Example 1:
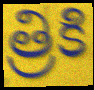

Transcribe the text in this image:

త్రికి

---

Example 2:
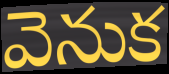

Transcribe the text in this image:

వెనుక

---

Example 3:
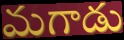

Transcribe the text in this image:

మగాడు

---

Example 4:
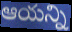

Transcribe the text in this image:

ఆయన్ని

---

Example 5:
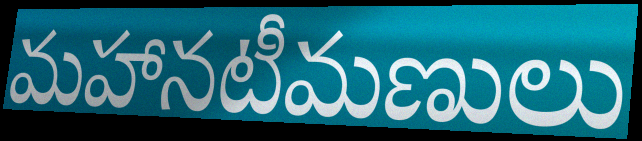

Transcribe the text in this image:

మహానటీమణులు